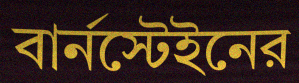
বার্নস্টেইনের